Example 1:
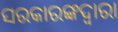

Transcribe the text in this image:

ସରକାରଙ୍କଦ୍ବାରା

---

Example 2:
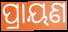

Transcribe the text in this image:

ପ୍ରାୟଣ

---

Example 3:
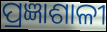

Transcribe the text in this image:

ପ୍ରଜ୍ଞାଶାଳୀ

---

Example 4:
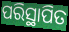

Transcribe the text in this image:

ପରିସ୍ଥାପିତ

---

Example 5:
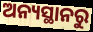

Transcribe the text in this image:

ଅନ୍ୟସ୍ଥାନରୁ